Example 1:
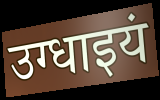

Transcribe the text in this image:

उग्धाइयं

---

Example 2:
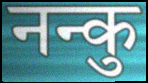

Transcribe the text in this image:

नन्कु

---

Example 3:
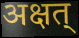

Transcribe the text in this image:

अक्षत्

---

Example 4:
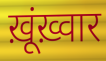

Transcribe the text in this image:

ख़ूंख़्वार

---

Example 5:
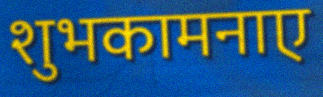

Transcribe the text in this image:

शुभकामनाए